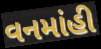
વનમાંહી